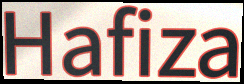
Hafiza